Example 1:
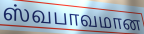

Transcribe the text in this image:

ஸ்வபாவமான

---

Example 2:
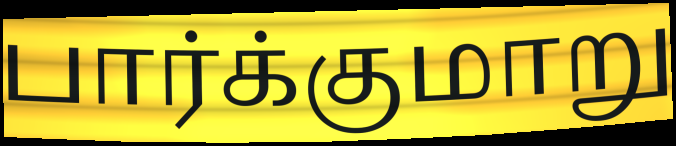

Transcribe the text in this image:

பார்க்குமாறு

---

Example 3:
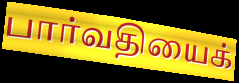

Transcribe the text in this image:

பார்வதியைக்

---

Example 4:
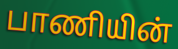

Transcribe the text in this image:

பாணியின்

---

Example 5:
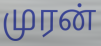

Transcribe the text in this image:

முரன்